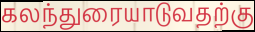
கலந்துரையாடுவதற்கு